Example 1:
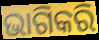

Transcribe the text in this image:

ଭାଗିକରି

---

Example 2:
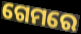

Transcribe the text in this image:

ଗେମରେ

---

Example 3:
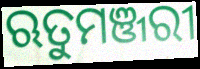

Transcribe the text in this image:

ଋତୁମଞ୍ଜରୀ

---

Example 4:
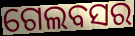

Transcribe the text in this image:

ଗେଲବସର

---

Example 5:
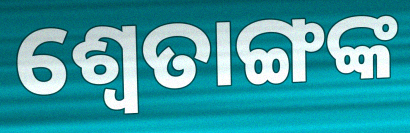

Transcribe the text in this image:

ଶ୍ୱେତାଙ୍ଗଙ୍କ